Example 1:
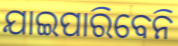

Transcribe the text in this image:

ଯାଇପାରିବେନି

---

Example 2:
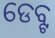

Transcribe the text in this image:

ଡେବ୍ଟ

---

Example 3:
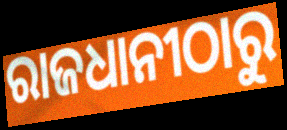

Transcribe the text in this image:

ରାଜଧାନୀଠାରୁ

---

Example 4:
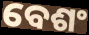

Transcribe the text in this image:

ବେଶଂ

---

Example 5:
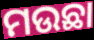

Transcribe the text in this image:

ମଉଛା